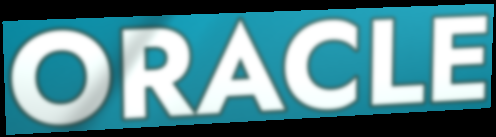
ORACLE